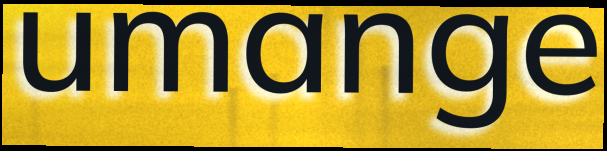
umange